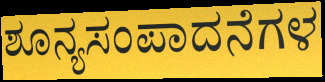
ಶೂನ್ಯಸಂಪಾದನೆಗಳ